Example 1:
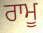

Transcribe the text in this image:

ਰਾਮੂ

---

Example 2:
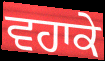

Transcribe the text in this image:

ਵਹਾਕੇ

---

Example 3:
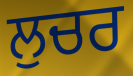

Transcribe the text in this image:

ਲੁਚਰ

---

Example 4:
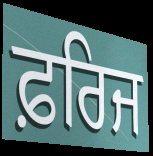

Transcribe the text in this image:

ਫ਼ਰਿਜ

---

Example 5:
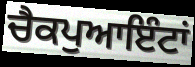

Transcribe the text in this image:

ਚੈਕਪੁਆਇੰਟਾਂ